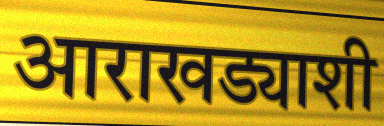
आराखड्याशी